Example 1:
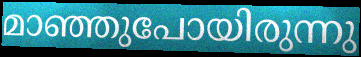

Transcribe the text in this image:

മാഞ്ഞുപോയിരുന്നു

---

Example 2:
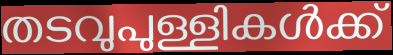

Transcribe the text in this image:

തടവുപുള്ളികൾക്ക്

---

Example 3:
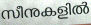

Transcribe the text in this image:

സീനുകളിൽ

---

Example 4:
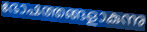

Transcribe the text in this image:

ഭോഷത്തങ്ങളാകുന്നു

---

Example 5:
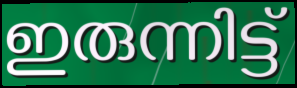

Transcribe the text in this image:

ഇരുന്നിട്ട്